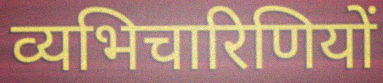
व्यभिचारिणियों